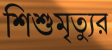
শিশুমৃত্যুর